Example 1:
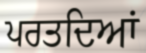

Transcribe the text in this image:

ਪਰਤਦਿਆਂ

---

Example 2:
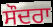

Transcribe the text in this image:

ਸੌਦਰਾ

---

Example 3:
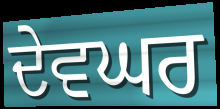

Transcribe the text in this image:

ਦੇਵਘਰ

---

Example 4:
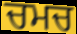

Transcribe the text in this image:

ਚਮਚ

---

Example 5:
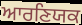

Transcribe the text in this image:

ਆਰਣਿਯਕ